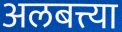
अलबत्त्या